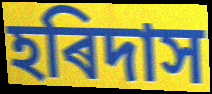
হৰিদাস